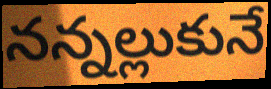
నన్నల్లుకునే